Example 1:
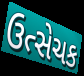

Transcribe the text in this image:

ઉત્સેચક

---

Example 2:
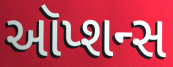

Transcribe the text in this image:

ઑપ્શન્સ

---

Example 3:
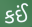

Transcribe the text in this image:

કઈં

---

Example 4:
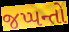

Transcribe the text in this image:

જપ્પન્તો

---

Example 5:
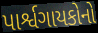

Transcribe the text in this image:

પાર્શ્વગાયકોનો